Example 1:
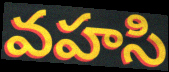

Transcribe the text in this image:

వహసి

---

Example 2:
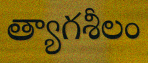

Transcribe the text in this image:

త్యాగశీలం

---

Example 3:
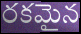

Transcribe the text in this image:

రకమైన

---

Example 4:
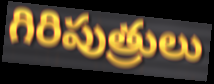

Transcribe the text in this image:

గిరిపుత్రులు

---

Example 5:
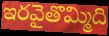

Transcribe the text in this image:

ఇరవైతొమ్మిది